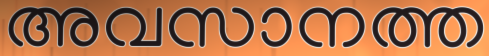
അവസാനത്ത